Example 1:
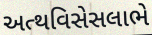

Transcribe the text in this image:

અત્થવિસેસલાભે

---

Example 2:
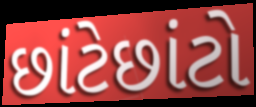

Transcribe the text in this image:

છાંટેછાંટો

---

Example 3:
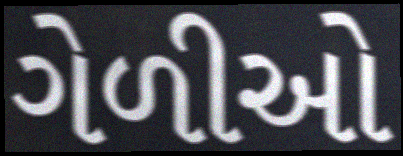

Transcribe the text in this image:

ગેળીઓ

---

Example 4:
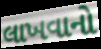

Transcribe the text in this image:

લાખવાનો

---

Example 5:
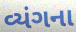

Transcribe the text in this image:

વ્યંગના